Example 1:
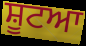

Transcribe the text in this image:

ਸ਼ੂਟਆ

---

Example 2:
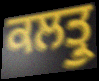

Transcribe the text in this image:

ਕਲਤ੍ਰੁ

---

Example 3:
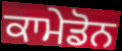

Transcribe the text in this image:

ਕਾਮੇਡੋਨ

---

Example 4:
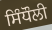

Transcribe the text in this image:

ਸਿੰਧੌਲੀ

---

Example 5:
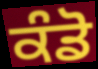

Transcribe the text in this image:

ਕੰਡੋ